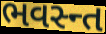
ભવસ્ન્ત